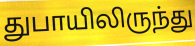
துபாயிலிருந்து